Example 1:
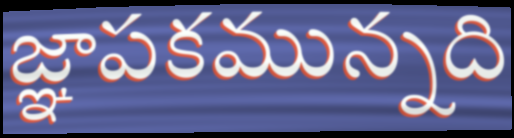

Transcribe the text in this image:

జ్ఞాపకమున్నది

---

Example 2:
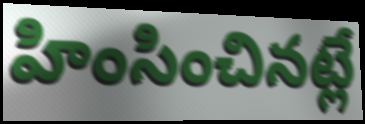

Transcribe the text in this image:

హింసించినట్లే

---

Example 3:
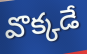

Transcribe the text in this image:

వొక్కడే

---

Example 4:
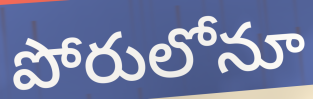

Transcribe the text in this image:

పోరులోనూ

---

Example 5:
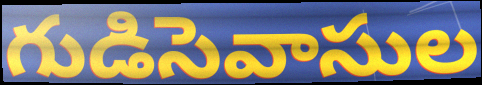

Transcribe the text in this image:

గుడిసెవాసుల